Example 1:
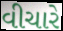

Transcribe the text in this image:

વીચારે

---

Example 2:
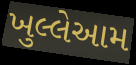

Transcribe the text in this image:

ખુલ્લેઆમ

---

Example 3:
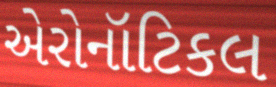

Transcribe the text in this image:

એરોનૉટિકલ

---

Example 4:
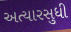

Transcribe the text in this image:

અત્યારસુધી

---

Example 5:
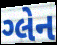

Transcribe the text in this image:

ગ્લેન